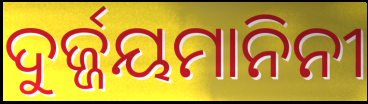
ଦୁର୍ଜ୍ଜୟମାନିନୀ